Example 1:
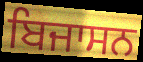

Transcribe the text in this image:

ਬਿਜਾਸਨ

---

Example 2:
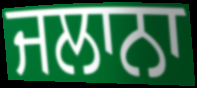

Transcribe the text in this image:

ਜਲਾਨਾ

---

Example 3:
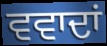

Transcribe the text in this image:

ਵਵਾਦਾਂ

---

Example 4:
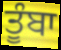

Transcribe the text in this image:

ਤੂੰਬਾ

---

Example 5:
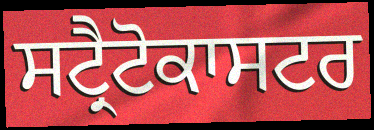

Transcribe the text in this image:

ਸਟ੍ਰੈਟੋਕਾਸਟਰ